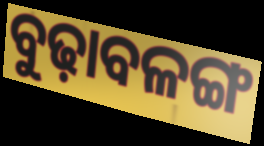
ବୁଢ଼ାବଳଙ୍ଗ